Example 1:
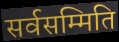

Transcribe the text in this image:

सर्वसम्मिति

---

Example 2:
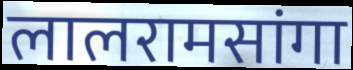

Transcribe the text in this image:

लालरामसांगा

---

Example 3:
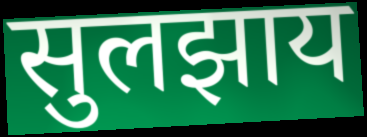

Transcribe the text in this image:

सुलझाय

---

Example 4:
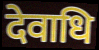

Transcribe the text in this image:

देवाधि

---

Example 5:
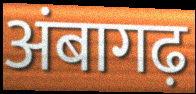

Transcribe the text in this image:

अंबागढ़